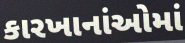
કારખાનાંઓમાં